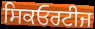
ਸਿਕਓਰਟੀਜ